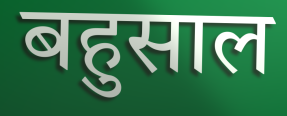
बहुसाल